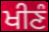
ਖੀਣੰ